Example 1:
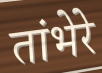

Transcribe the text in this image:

तांभेरे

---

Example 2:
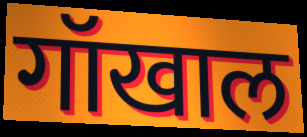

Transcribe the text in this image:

गॉखाल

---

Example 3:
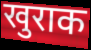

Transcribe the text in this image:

खुराक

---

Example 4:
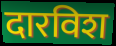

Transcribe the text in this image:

दारविश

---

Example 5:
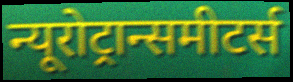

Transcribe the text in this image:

न्यूरोट्रान्समीटर्स